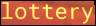
lottery